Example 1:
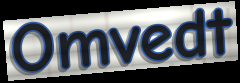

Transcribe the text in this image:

Omvedt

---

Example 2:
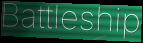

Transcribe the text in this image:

Battleship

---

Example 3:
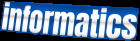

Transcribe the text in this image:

informatics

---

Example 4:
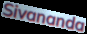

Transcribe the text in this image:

Sivananda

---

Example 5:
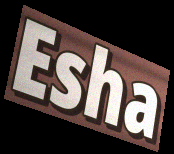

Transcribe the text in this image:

Esha